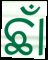
ଛାଁ